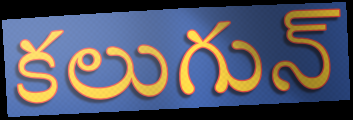
కలుగున్